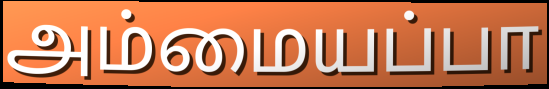
அம்மையப்பா